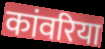
कांवरिया